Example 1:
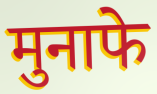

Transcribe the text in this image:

मुनाफे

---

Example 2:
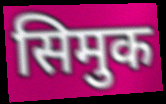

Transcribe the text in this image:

सिमुक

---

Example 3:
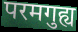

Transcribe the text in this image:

परमगुह्य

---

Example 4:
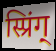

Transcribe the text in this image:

स्प्रिंग्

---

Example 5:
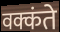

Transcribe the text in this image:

वक्कंते